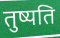
तुष्यति